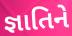
જ્ઞાતિને